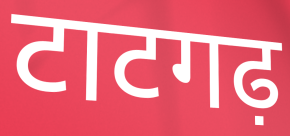
टाटगढ़